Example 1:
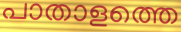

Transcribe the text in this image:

പാതാളത്തെ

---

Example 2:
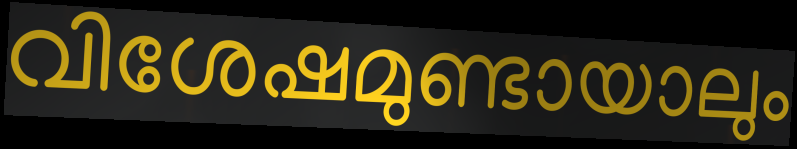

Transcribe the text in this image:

വിശേഷമുണ്ടായാലും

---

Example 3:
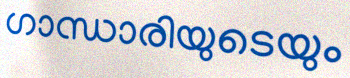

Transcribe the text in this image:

ഗാന്ധാരിയുടെയും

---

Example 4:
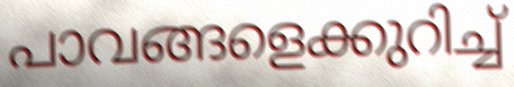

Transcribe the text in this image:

പാവങ്ങളെക്കുറിച്ച്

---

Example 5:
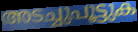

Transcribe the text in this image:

അടച്ചുപൂട്ടുക